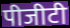
पीजीटी